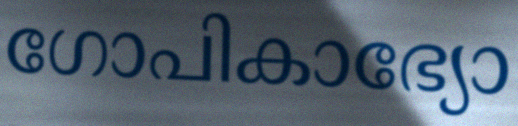
ഗോപികാഭ്യോ